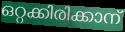
ഒറ്റക്കിരിക്കാന്